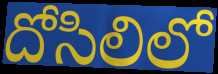
దోసిలిలో